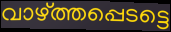
വാഴ്ത്തപ്പെടട്ടെ